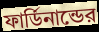
ফার্ডিনান্ডের